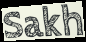
Sakh